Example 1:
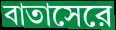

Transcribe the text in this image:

বাতাসেরে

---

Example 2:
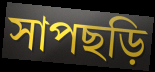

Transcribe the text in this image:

সাপছড়ি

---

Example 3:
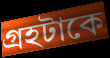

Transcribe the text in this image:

গ্রহটাকে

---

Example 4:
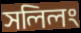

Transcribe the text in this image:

সলিলং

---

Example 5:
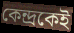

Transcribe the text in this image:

কেন্দ্রকেই